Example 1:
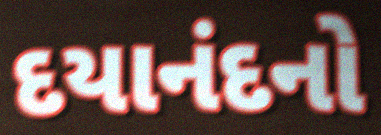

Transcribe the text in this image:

દયાનંદનો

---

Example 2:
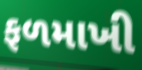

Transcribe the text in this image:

ફળમાખી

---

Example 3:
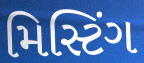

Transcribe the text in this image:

મિસ્ટિંગ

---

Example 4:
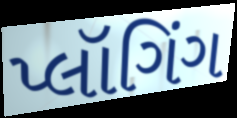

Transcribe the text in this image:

પ્લૉગિંગ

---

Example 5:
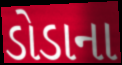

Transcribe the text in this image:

ડોડાના